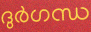
ദുർഗന്ധ